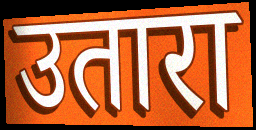
उतारा